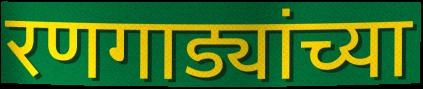
रणगाड्यांच्या